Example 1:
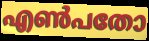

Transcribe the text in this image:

എൺപതോ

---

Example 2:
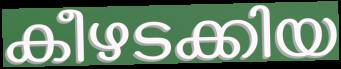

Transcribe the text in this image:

കീഴടക്കിയ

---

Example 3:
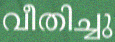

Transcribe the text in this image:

വീതിച്ചു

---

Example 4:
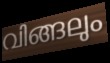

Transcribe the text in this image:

വിങ്ങലും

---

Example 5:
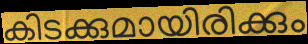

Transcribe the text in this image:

കിടക്കുമായിരിക്കും